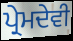
ਪ੍ਰੇਮਦੇਵੀ